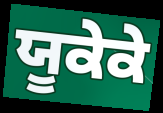
ਯੂਕੇਕੇ